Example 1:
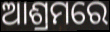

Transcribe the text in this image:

ଆଶ୍ରମରେ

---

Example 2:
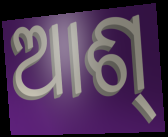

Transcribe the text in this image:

ଆଶ୍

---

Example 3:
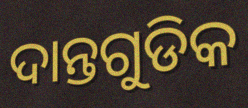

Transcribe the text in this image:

ଦାନ୍ତଗୁଡିକ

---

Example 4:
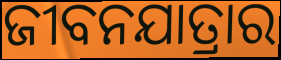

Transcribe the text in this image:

ଜୀବନଯାତ୍ରାର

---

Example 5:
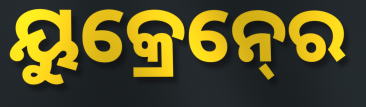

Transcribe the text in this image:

ୟୁକ୍ରେନ୍‍ରେ